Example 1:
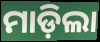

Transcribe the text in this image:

ମାଡ଼ିଲା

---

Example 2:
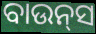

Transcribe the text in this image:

ବାଉନ୍‌ସ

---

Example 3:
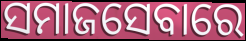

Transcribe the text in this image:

ସମାଜସେବାରେ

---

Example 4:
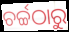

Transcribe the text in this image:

ଚର୍ଚ୍ଚଠାରୁ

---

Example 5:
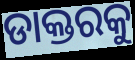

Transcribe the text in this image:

ଡାକ୍ତରକୁ